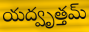
యద్వృత్తమ్